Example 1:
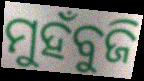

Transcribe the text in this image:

ମୁହଁବୁଜି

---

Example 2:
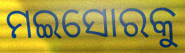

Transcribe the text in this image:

ମଇସୋରକୁ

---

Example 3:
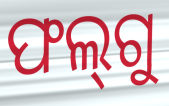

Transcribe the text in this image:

ଫଲ୍‌ଗୁ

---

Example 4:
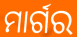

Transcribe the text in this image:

ମାର୍ଗର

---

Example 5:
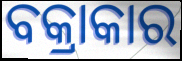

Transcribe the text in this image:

ବକ୍ରାକାର